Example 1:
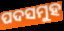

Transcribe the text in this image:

ପଦସମୁହ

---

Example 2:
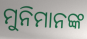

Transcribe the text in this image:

ମୁନିମାନଙ୍କ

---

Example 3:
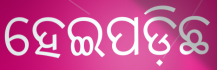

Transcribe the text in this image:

ହେଇପଡ଼ିଛ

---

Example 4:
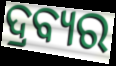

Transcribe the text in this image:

ଦ୍ରବ୍ୟର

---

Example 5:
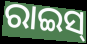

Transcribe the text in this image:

ରାଇସ୍